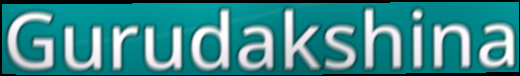
Gurudakshina